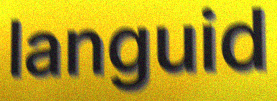
languid